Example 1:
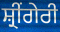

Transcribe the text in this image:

ਸ਼੍ਰੀਂਗੇਰੀ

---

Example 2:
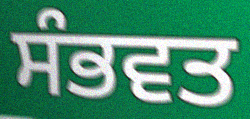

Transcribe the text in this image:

ਸੰਭਵਤ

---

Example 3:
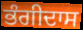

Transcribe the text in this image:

ਭੰਗੀਦਾਸ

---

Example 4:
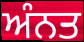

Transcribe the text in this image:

ਅੰਨਤ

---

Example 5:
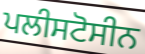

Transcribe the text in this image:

ਪਲੀਸਟੋਸੀਨ